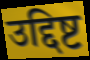
उद्दिष्ट